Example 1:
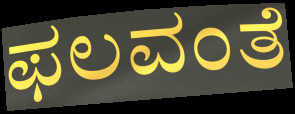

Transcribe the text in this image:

ಫಲವಂತೆ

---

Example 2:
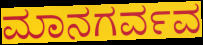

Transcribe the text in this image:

ಮಾನಗರ್ವವ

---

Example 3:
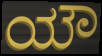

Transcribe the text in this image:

ಯೌ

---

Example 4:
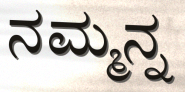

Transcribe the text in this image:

ನಮ್ಮನ್ನ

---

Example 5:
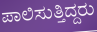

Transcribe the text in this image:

ಪಾಲಿಸುತ್ತಿದ್ದರು